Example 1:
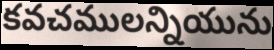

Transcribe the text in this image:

కవచములన్నియును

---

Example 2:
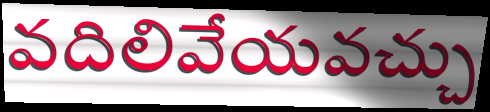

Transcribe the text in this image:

వదిలివేయవచ్చు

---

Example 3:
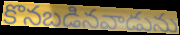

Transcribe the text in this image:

కొనబడినవాడును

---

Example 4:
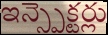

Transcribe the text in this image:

ఇన్స్పెక్టర్లు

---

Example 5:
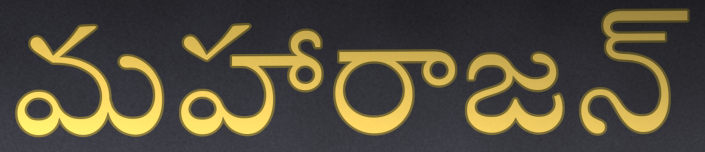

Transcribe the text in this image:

మహారాజన్